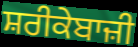
ਸ਼ਰੀਕੇਬਾਜ਼ੀ